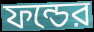
ফন্ডের